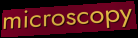
microscopy